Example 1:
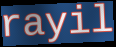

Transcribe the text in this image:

rayil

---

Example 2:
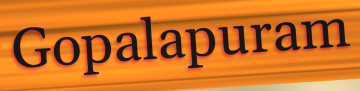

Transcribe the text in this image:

Gopalapuram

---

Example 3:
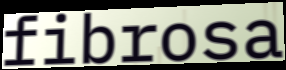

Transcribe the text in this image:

fibrosa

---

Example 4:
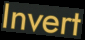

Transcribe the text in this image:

Invert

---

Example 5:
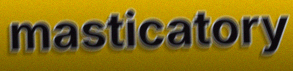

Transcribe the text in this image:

masticatory